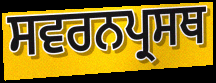
ਸਵਰਨਪ੍ਰਸਥ